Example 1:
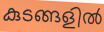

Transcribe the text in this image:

കുടങ്ങളിൽ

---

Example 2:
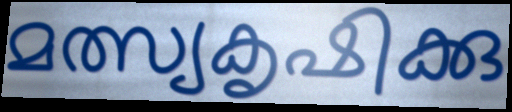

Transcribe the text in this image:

മത്സ്യകൃഷിക്കു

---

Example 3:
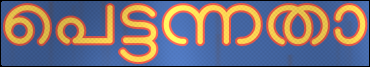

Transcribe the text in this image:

പെട്ടന്നതാ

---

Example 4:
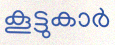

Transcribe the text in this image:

കൂട്ടുകാർ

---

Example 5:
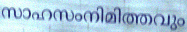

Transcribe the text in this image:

സാഹസംനിമിത്തവും